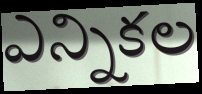
ఎన్నికల